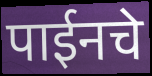
पाईनचे